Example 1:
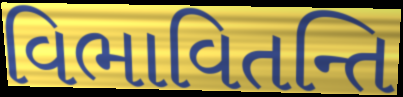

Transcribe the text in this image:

વિભાવિતન્તિ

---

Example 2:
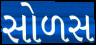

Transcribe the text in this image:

સોળસ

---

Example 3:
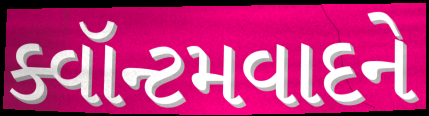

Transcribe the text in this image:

ક્વૉન્ટમવાદને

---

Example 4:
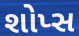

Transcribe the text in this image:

શોપ્સ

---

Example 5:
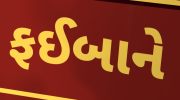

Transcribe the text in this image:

ફઈબાને